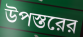
উপস্তরের